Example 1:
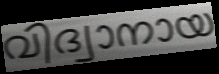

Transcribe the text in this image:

വിദ്വാനായ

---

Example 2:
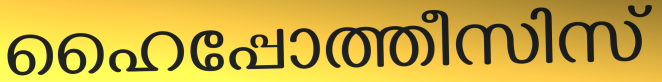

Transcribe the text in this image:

ഹൈപ്പോത്തീസിസ്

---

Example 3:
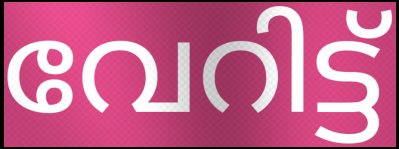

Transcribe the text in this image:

വേറിട്ട്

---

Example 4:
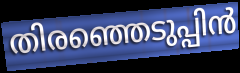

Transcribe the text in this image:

തിരഞ്ഞെടുപ്പിൻ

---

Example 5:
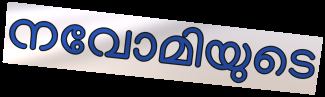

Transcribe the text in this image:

നവോമിയുടെ